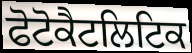
ਫੋਟੋਕੈਟਲਿਟਿਕ